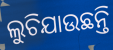
ଲୁଚିଯାଉଛନ୍ତି